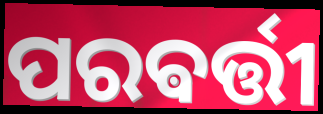
ପରଵର୍ତ୍ତୀ